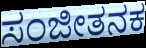
ಸಂಜೀತನಕ